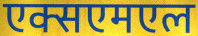
एक्सएमएल